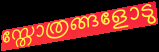
സ്തോത്രങ്ങളോടു